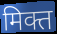
मिक्त